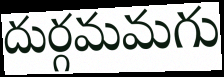
దుర్గమమగు